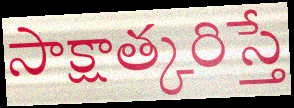
సాక్షాత్కరిస్తే